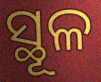
ସ୍ଥୂଳ